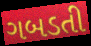
ગબડતી